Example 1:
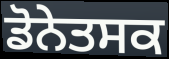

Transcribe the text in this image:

ਡੋਨੇਤਸਕ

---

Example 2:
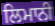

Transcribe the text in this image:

ਲਿਮਾਨੀ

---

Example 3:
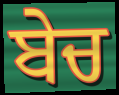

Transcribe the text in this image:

ਬੇਚ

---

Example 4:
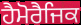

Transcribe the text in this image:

ਹੈਮੋਰੈਜਿਕ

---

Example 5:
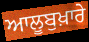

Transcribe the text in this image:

ਆਲੂਬੁਖ਼ਾਰੇ